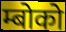
म्बोको